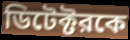
ডিটেক্টরকে